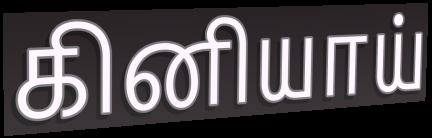
கினியாய்